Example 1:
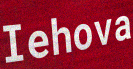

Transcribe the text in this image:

Iehova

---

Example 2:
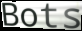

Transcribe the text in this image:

Bots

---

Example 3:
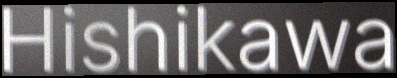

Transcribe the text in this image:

Hishikawa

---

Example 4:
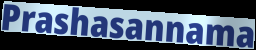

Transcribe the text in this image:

Prashasannama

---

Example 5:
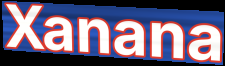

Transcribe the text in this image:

Xanana